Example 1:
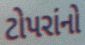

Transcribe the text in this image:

ટોપરાંનો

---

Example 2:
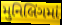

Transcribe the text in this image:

મુનિલિંગમાં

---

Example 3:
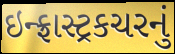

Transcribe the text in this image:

ઇન્ફ્રાસ્ટ્રકચરનું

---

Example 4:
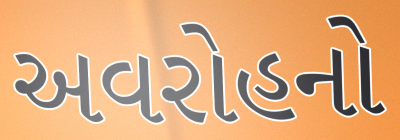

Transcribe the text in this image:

અવરોહનો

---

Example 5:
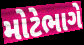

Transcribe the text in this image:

મોટેભાગે